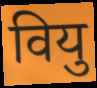
वियु